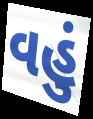
વહું